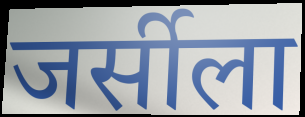
जर्सीला